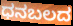
ಧನಬಲದ